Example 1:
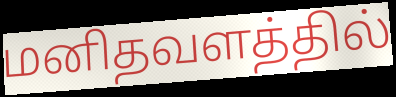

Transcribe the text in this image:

மனிதவளத்தில்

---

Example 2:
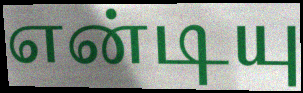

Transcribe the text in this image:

என்டியு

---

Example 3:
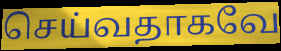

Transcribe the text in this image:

செய்வதாகவே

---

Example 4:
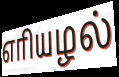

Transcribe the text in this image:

எரியழல்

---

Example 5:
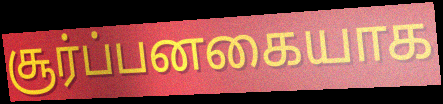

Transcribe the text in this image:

சூர்ப்பனகையாக